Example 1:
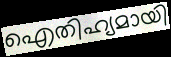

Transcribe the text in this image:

ഐതിഹ്യമായി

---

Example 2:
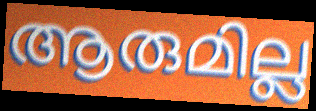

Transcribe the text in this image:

ആരുമില്ല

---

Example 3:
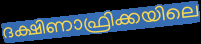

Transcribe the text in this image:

ദക്ഷിണാഫ്രിക്കയിലെ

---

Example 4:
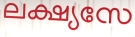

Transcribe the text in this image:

ലക്ഷ്യസേ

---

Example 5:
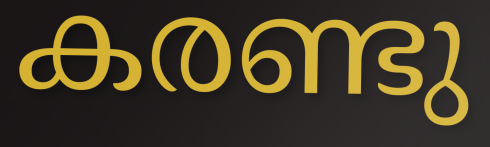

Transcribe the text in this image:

കരണ്ടു